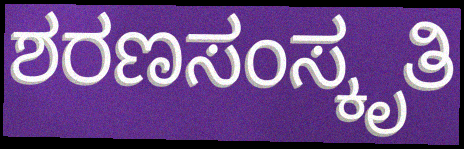
ಶರಣಸಂಸ್ಕೃತಿ